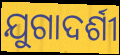
ଯୁଗାଦର୍ଶୀ